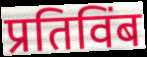
प्रतिविंब